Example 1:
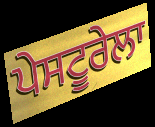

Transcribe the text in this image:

ਪੇਸਟੂਰੇਲਾ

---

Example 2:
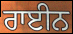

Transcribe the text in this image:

ਰਾਈਨ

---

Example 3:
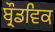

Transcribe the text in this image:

ਬ੍ਰੌਡਵਿਕ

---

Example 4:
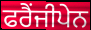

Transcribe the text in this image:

ਫਰੈਂਜੀਪੇਨ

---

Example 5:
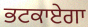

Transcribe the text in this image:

ਭਟਕਾਏਗਾ